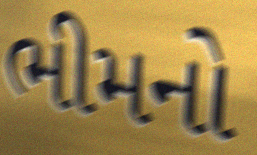
ભીમનો